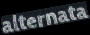
alternata